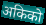
अकिको